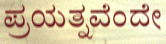
ಪ್ರಯತ್ನವೆಂದೇ